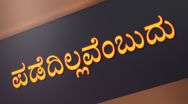
ಪಡೆದಿಲ್ಲವೆಂಬುದು